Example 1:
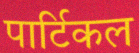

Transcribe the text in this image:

पार्टिकल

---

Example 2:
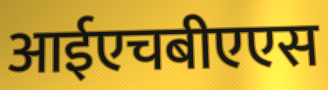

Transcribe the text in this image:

आईएचबीएएस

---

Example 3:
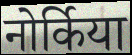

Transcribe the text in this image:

नोर्किया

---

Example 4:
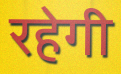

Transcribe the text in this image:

रहेगी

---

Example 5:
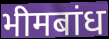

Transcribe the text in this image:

भीमबांध